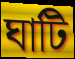
ঘাটি